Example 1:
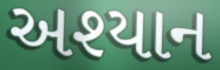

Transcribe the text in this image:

અશ્યાન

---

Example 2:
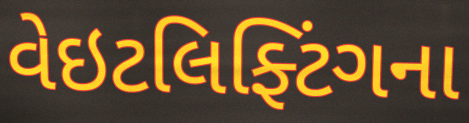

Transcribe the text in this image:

વેઇટલિફ્ટિંગના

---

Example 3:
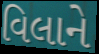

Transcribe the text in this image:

વિલાને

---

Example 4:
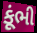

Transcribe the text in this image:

કૂંભી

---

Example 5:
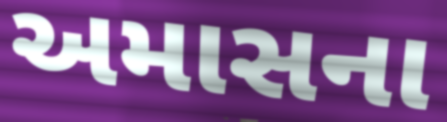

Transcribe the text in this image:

અમાસના